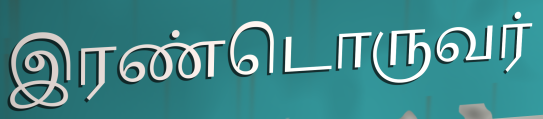
இரண்டொருவர்